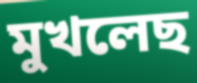
মুখলেছ